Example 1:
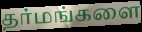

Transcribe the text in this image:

தர்மங்களை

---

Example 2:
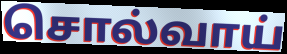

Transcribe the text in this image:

சொல்வாய்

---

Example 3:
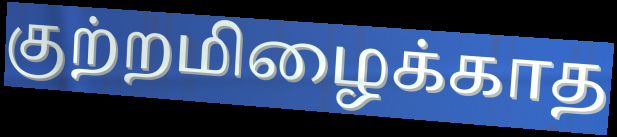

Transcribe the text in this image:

குற்றமிழைக்காத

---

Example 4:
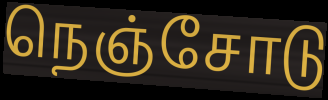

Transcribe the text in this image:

நெஞ்சோடு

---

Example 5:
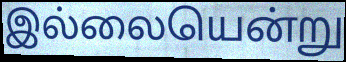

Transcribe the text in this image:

இல்லையென்று